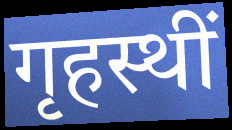
गृहस्थीं